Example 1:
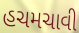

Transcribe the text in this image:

હચમચાવી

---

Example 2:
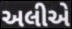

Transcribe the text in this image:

અલીએ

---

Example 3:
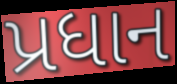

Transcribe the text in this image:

પ્રધાન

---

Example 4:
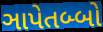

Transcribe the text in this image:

ઞાપેતબ્બો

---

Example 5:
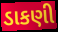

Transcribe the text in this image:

ડાકણી